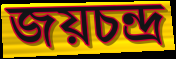
জয়চন্দ্র